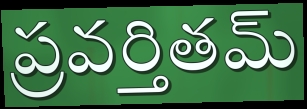
ప్రవర్తితమ్